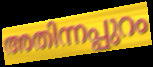
അതിന്നപ്പുറം